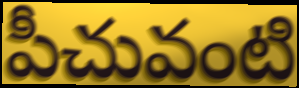
పీచువంటి